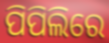
ପିପିଲିରେ